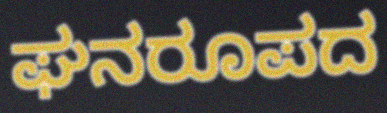
ಘನರೂಪದ